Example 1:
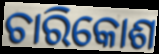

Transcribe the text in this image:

ଚାରିକୋଶ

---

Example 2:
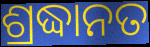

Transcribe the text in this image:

ଶ୍ରଦ୍ଧାନତ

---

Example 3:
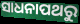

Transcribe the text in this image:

ସାଧନାପଥରୁ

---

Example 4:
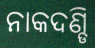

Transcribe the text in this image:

ନାକଦଣ୍ଡି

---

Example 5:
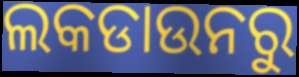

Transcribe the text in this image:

ଲକଡାଉନରୁ